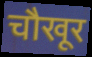
चौखूर